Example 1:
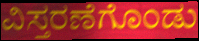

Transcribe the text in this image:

ವಿಸ್ತರಣೆಗೊಂಡು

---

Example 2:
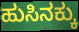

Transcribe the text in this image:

ಹುಸಿನಕ್ಕು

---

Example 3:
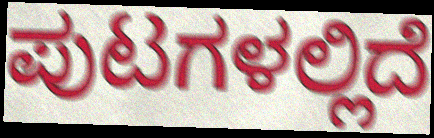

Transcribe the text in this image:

ಪುಟಗಳಲ್ಲಿದೆ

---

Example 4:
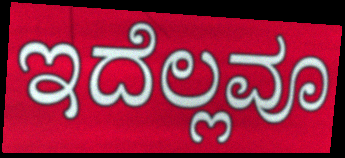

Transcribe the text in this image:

ಇದೆಲ್ಲವೂ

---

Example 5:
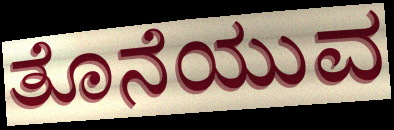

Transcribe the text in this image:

ತೊನೆಯುವ